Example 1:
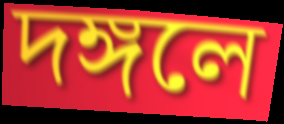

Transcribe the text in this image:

দঙ্গলে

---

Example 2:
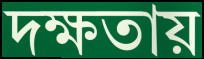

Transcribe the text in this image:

দক্ষতায়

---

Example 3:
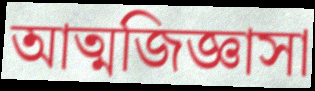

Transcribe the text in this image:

আত্মজিজ্ঞাসা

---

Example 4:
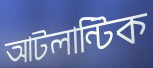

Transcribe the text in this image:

আটলান্টিক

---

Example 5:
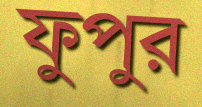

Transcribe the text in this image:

ফুপুর